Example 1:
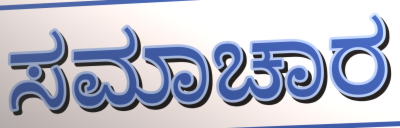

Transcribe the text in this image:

ಸಮಾಚಾರ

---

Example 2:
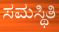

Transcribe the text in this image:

ಸಮಸ್ಥಿತಿ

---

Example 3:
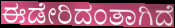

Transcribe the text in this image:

ಈಡೇರಿದಂತಾಗಿದೆ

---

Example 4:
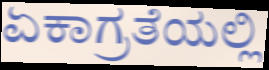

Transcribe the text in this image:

ಏಕಾಗ್ರತೆಯಲ್ಲಿ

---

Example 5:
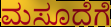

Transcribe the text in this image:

ಮಸೂದೆಗೆ